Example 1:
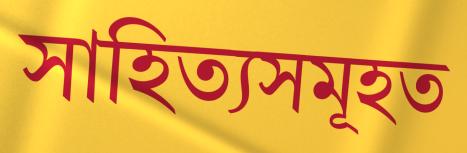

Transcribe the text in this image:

সাহিত্যসমূহত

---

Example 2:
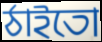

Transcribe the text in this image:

ঠাইতো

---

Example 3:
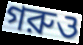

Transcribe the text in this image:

গৰুও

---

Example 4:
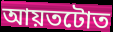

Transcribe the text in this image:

আয়তটোত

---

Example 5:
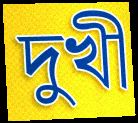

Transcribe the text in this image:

দুখী